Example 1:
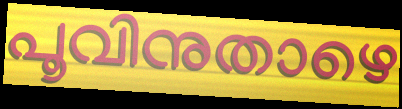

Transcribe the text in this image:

പൂവിനുതാഴെ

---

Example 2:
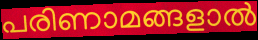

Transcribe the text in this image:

പരിണാമങ്ങളാൽ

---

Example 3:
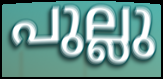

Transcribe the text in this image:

പുല്ലു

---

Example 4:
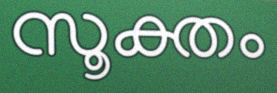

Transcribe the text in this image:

സൂക്തം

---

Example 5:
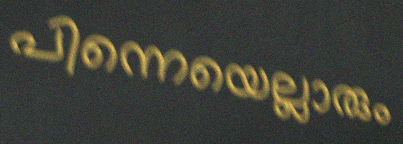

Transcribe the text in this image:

പിന്നെയെല്ലാരും